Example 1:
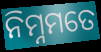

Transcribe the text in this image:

ନିମ୍ନମତେ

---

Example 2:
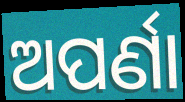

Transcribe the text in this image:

ଅପର୍ଣା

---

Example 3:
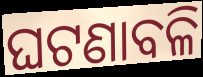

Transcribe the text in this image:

ଘଟଣାବଳି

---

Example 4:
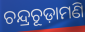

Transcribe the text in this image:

ଚନ୍ଦ୍ରଚୂଡ଼ାମଣି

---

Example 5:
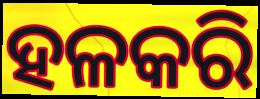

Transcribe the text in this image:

ହଳକରି